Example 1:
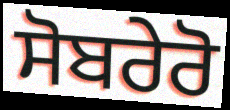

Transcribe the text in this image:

ਸੋਬਰੇਰੋ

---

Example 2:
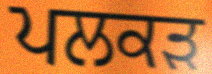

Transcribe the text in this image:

ਪਲਕੜ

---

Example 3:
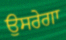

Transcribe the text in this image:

ਉਸਰੇਗਾ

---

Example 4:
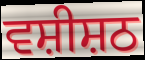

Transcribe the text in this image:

ਵਸ਼ੀਸ਼ਠ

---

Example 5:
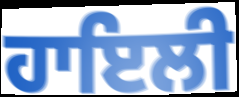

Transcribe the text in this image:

ਹਾਇਲੀ